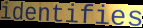
identifies